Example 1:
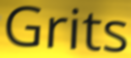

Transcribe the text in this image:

Grits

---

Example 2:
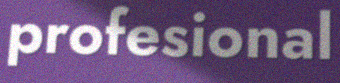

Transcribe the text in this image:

profesional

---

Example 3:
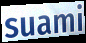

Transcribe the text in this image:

suami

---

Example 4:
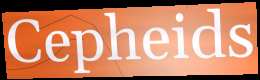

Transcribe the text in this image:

Cepheids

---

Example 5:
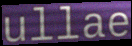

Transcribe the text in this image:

ullae